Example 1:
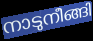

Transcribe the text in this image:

നാടുനീങ്ങി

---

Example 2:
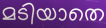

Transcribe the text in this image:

മടിയാതെ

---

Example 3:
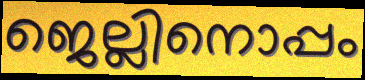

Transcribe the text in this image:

ജെല്ലിനൊപ്പം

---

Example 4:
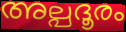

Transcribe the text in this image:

അല്പദൂരം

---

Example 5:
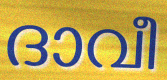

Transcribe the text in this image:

ദാവീ